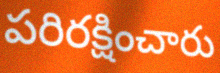
పరిరక్షించారు